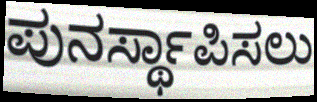
ಪುನರ್ಸ್ಥಾಪಿಸಲು